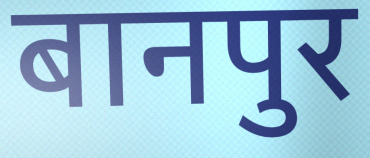
बानपुर